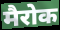
मैरोक